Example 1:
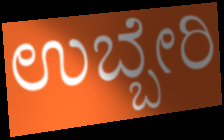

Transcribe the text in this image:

ಉಬ್ಬೇರಿ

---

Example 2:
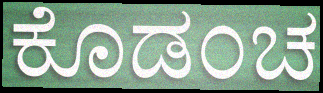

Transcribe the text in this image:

ಕೊಡಂಚ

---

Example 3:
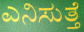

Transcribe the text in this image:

ಎನಿಸುತ್ತೆ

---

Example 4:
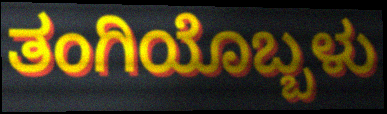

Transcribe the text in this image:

ತಂಗಿಯೊಬ್ಬಳು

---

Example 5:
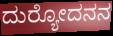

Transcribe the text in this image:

ದುರ್‍ಯೋದನನ